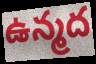
ఉన్మద